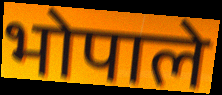
भोपाले